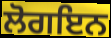
ਲੋਗਇਨ